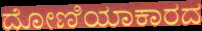
ದೋಣಿಯಾಕಾರದ